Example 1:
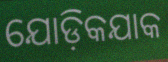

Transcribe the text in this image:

ଯୋଡ଼ିକଯାକ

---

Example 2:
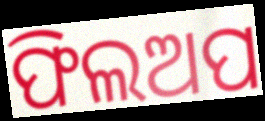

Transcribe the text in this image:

ଫିଲଅପ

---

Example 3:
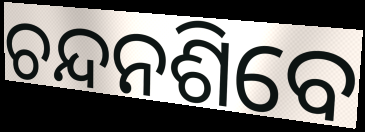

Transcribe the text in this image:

ଚନ୍ଦନଶିବେ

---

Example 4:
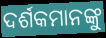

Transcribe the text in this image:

ଦର୍ଶକମାନଙ୍କୁ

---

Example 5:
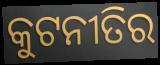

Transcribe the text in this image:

କୁଟନୀତିର